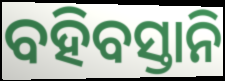
ବହିବସ୍ତାନି